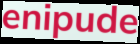
enipude